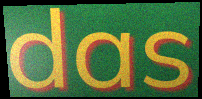
das